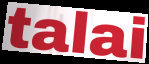
talai